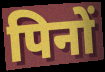
पिनों